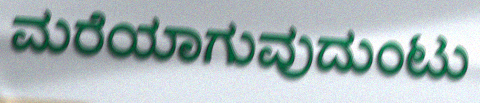
ಮರೆಯಾಗುವುದುಂಟು